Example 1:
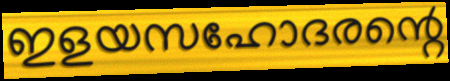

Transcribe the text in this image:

ഇളയസഹോദരന്റെ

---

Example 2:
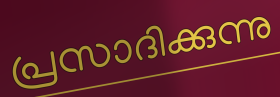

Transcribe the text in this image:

പ്രസാദിക്കുന്നു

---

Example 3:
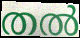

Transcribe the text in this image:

തൽ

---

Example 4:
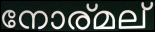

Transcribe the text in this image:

നോര്മല്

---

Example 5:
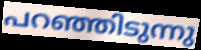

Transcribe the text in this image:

പറഞ്ഞിടുന്നു